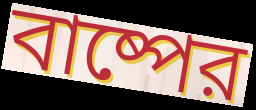
বাষ্পের